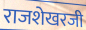
राजशेखरजी